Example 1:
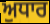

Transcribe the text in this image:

ਅੁਧਾਰ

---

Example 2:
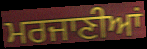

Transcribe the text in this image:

ਮਰਜਾਣੀਆਂ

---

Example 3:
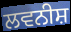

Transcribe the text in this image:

ਲਵਨੀਸ਼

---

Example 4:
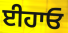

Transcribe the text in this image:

ਈਹਾਓ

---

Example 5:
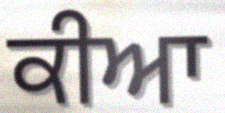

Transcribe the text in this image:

ਕੀਆ